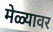
मेळ्यावर